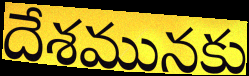
దేశమునకు